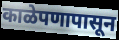
काळेपणापासून